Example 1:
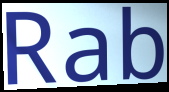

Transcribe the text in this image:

Rab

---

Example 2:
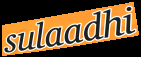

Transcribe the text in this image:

sulaadhi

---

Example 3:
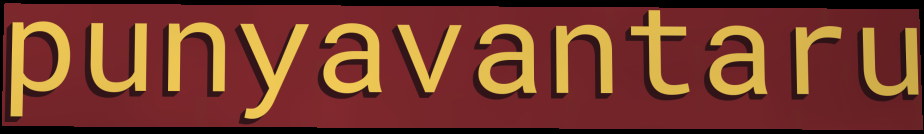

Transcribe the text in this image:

punyavantaru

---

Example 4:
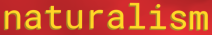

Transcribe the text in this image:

naturalism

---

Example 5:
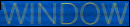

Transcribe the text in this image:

WINDOW